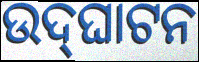
ଉଦ୍‍ଘାଟନ